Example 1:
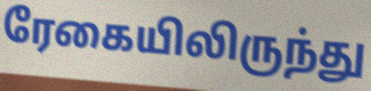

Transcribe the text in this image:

ரேகையிலிருந்து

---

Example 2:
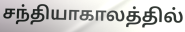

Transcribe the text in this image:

சந்தியாகாலத்தில்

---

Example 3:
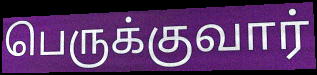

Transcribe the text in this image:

பெருக்குவார்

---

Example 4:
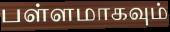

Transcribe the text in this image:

பள்ளமாகவும்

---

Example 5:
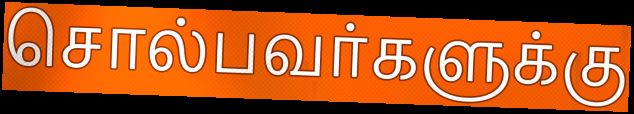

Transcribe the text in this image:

சொல்பவர்களுக்கு